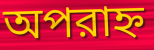
অপরাহ্ন